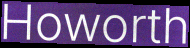
Howorth